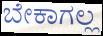
ಬೇಕಾಗಲ್ಲ